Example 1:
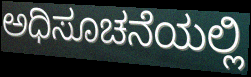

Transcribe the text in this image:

ಅಧಿಸೂಚನೆಯಲ್ಲಿ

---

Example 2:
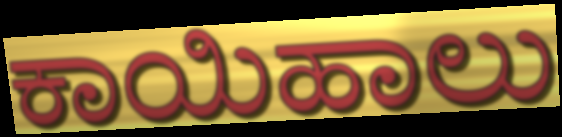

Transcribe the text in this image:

ಕಾಯಿಹಾಲು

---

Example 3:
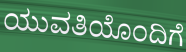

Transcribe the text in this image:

ಯುವತಿಯೊಂದಿಗೆ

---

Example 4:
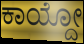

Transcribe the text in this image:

ಕಾಯ್ದೋ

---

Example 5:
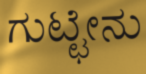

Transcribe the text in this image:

ಗುಟ್ಟೇನು